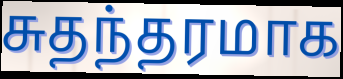
சுதந்தரமாக